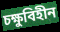
চক্ষুবিহীন